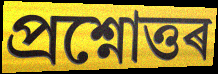
প্ৰশ্নোত্তৰ